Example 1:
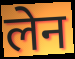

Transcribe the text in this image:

लेन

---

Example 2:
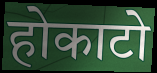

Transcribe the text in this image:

होकाटो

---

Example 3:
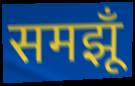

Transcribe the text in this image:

समझूँ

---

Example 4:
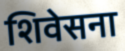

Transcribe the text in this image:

शिवेसना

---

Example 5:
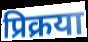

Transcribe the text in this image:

प्रिक्रया